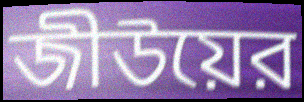
জীউয়ের